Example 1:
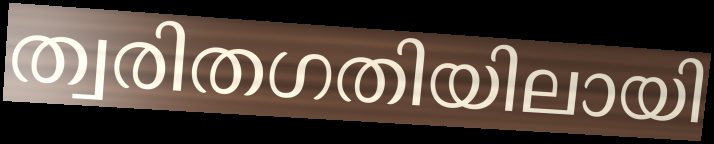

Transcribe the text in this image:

ത്വരിതഗതിയിലായി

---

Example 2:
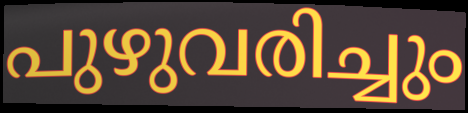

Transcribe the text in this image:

പുഴുവരിച്ചും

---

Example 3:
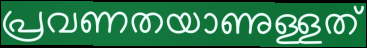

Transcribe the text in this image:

പ്രവണതയാണുള്ളത്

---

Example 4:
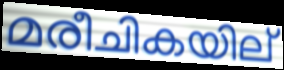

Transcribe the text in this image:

മരീചികയില്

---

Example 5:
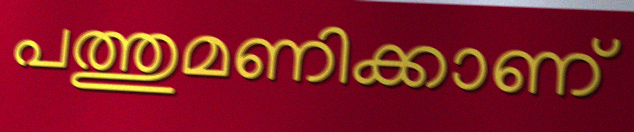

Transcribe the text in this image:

പത്തുമണിക്കാണ്